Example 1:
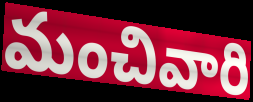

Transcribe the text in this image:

మంచివారి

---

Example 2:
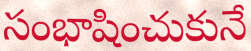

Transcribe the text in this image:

సంభాషించుకునే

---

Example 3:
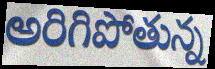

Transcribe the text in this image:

అరిగిపోతున్న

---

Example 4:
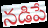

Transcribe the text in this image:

నడిపే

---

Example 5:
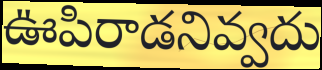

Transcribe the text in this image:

ఊపిరాడనివ్వదు